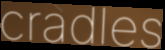
cradles